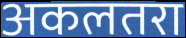
अकलतरा